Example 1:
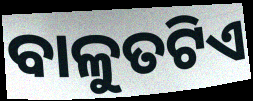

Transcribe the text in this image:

ବାଳୁତଟିଏ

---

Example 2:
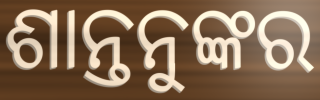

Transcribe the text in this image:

ଶାନ୍ତନୁଙ୍କର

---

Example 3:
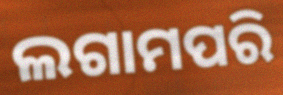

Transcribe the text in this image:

ଲଗାମପରି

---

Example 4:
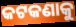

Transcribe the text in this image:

କଟକଣାକୁ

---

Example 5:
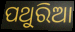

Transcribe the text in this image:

ପଥୁରିଆ